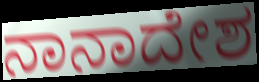
ನಾನಾದೇಶ